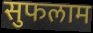
सुफलाम